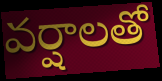
వర్షాలతో